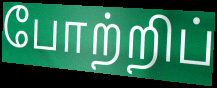
போற்றிப்